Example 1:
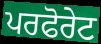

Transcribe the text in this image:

ਪਰਫੋਰੇਟ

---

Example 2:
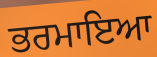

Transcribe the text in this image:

ਭਰਮਾਇਆ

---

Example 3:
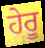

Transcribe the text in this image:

ਹੇਰੂ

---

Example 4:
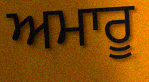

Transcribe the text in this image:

ਅਮਾਰੂ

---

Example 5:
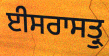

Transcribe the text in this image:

ਈਸਰਾਸਤ੍ਰੁ